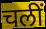
चलीं